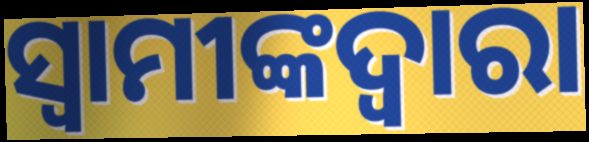
ସ୍ୱାମୀଙ୍କଦ୍ୱାରା